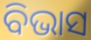
ବିଭାସ